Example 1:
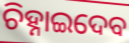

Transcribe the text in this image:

ଚିହ୍ନାଇଦେବ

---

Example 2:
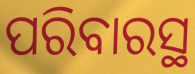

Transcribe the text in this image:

ପରିବାରସ୍ଥ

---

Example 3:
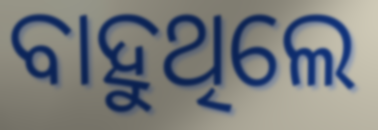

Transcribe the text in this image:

ବାହୁଥିଲେ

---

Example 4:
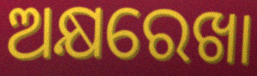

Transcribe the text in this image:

ଅକ୍ଷରେଖା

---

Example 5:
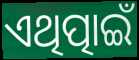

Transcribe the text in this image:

ଏଥିତ୍ପାଇଁ